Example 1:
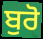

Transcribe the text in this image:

ਬੁਰੋ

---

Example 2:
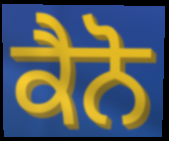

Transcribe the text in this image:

ਕੈਨੋ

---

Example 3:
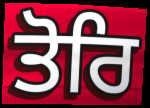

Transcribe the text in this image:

ਤੋਰਿ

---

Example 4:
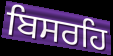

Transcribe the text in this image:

ਬਿਸਰਹਿ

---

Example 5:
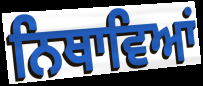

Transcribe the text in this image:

ਨਿਥਾਵਿਆਂ